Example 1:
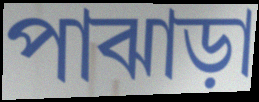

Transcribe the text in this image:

পাঝাড়া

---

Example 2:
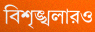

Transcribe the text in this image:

বিশৃঙ্খলারও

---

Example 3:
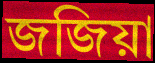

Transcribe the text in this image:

জজিয়া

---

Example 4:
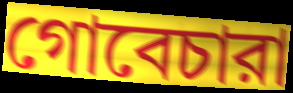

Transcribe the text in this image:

গোবেচারা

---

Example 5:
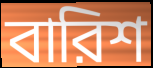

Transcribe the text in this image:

বারিশ